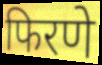
फिरणे